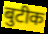
बुटीक